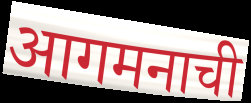
आगमनाची